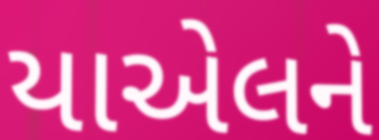
યાએલને